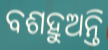
ବଶହୁଅନ୍ତି